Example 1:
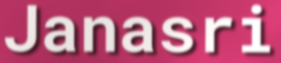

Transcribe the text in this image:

Janasri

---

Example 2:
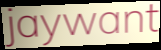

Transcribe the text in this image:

jaywant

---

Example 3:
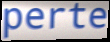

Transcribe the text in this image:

perte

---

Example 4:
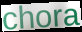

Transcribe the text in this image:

chora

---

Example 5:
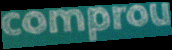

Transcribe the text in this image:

comprou